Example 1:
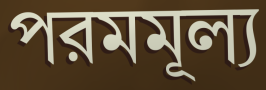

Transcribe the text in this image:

পরমমূল্য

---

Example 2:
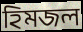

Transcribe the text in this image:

হিমজল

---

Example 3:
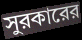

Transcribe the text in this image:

সুরকারের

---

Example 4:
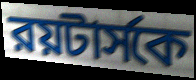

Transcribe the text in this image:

রয়টার্সকে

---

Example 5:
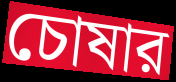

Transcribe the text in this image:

চোষার